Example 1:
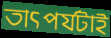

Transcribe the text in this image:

তাৎপর্যটাই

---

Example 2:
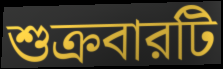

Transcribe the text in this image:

শুক্রবারটি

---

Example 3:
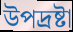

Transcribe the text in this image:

উপদ্রষ্টা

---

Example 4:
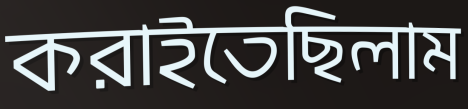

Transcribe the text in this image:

করাইতেছিলাম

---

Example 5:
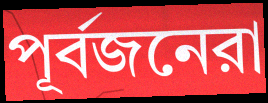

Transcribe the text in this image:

পূর্বজনেরা